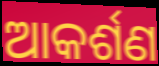
ଆକର୍ଶଣ